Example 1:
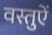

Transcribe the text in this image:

वस्तुऐं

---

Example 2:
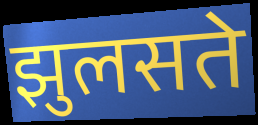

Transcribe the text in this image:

झुलसते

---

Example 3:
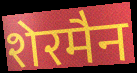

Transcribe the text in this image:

शेरमैन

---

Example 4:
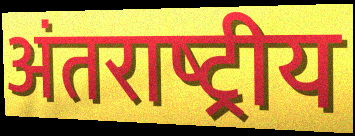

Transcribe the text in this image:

अंतराष्ट्रीय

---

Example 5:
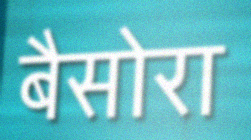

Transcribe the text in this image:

बैसोरा